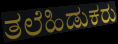
ತಲೆಹಿಡುಕರು